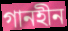
গানহীন